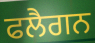
ਫਲੈਗਨ